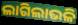
ଲାଗିଲାଭଳି